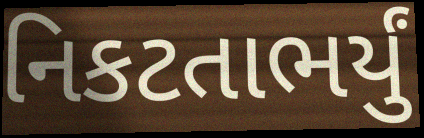
નિકટતાભર્યું